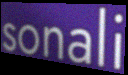
sonali